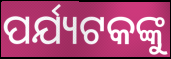
ପର୍ଯ୍ୟଟକଙ୍କୁ